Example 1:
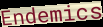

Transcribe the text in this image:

Endemics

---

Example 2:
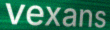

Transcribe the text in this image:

vexans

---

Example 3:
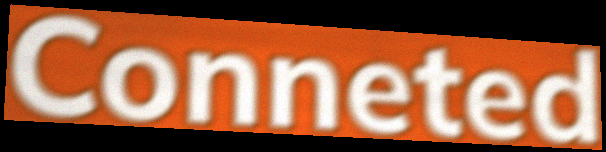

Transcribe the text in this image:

Conneted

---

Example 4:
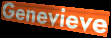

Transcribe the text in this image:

Genevieve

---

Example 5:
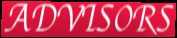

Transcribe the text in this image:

ADVISORS